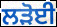
ਲੜੋਈ